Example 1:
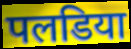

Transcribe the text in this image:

पलडिया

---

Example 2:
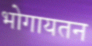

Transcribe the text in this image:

भोगायतन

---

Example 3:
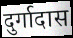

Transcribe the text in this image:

दुर्गादास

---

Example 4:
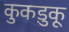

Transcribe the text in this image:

कुकड़ुकू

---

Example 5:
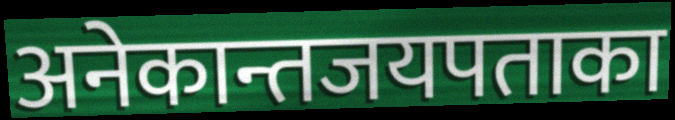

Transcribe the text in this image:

अनेकान्तजयपताका